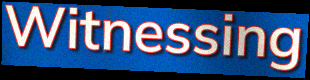
Witnessing